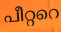
പീറ്ററെ